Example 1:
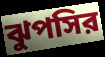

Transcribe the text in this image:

ঝুপসির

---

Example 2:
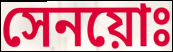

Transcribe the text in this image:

সেনয়োঃ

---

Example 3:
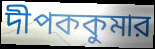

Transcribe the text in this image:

দীপককুমার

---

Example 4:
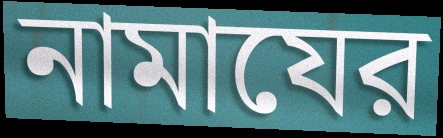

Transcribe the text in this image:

নামাযের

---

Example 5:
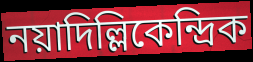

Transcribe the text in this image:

নয়াদিল্লিকেন্দ্রিক